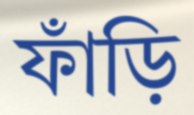
ফাঁড়ি